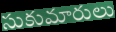
సుకుమారులు